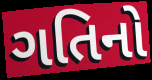
ગતિનો